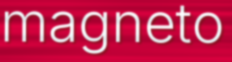
magneto